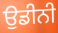
ਉਡੀਨੀ